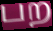
பற